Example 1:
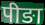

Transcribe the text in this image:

पीङा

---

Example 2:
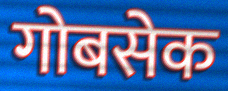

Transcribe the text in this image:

गोबसेक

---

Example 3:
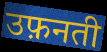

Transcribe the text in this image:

उफ़नती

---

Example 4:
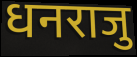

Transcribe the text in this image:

धनराजु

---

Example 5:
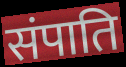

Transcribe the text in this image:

संपाति